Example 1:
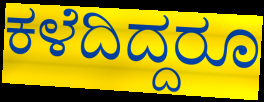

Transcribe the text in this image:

ಕಳೆದಿದ್ದರೂ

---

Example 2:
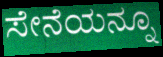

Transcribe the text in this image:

ಸೇನೆಯನ್ನೂ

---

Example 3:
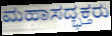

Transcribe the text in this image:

ಮಹಾಸದ್ಭಕ್ತರು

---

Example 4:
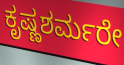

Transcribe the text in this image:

ಕೃಷ್ಣಶರ್ಮರೇ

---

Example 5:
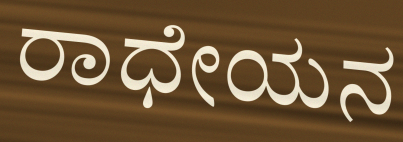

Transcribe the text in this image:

ರಾಧೇಯನ